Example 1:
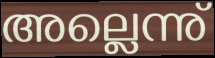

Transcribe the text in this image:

അല്ലെന്നു്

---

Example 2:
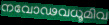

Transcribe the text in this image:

നവോഢവധൂമിവ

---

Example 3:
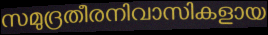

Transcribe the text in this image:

സമുദ്രതീരനിവാസികളായ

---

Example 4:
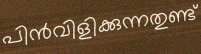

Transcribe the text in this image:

പിൻവിളിക്കുന്നതുണ്ട്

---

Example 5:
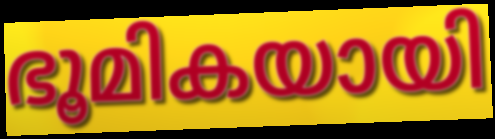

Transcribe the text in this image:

ഭൂമികയായി